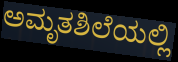
ಅಮೃತಶಿಲೆಯಲ್ಲಿ